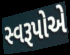
સ્વરૂપોએ